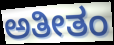
ಅತೀತಂ